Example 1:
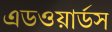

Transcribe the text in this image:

এডওয়ার্ডস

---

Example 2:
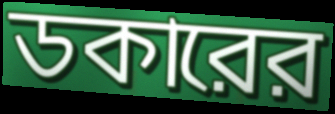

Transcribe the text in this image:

ডকারের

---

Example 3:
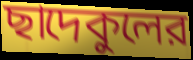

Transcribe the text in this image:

ছাদেকুলের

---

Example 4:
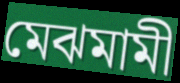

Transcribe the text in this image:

মেঝমামী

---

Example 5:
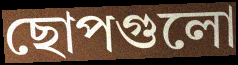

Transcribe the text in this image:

ছোপগুলো